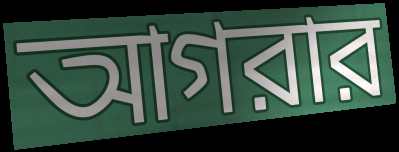
আগরার